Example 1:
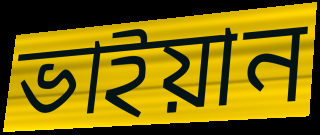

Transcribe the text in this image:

ভাইয়ান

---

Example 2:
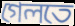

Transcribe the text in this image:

গেলতে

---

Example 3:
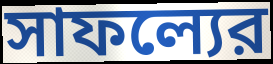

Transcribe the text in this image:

সাফল্যের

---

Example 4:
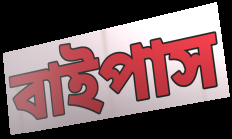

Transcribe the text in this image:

বাইপাস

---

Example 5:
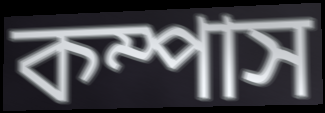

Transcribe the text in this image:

কম্পাস